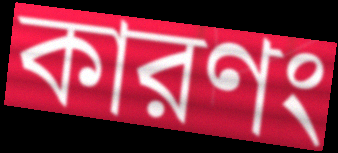
কারণং